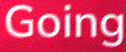
Going